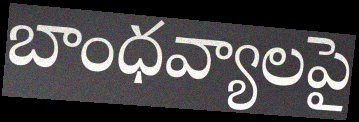
బాంధవ్యాలపై